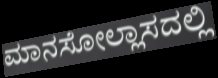
ಮಾನಸೋಲ್ಲಾಸದಲ್ಲಿ